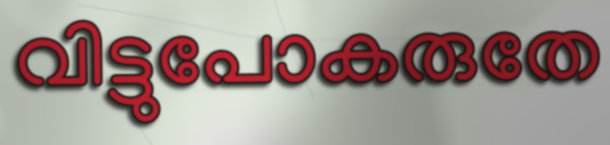
വിട്ടുപോകരുതേ